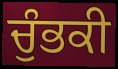
ਚੁੰਭਕੀ